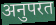
अनुपरत